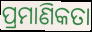
ପ୍ରମାଣିକତା